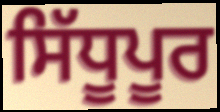
ਸਿੱਧੂਪੂਰ